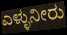
ಎಳ್ಳುನೀರು